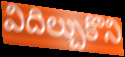
విదిల్చుకొని